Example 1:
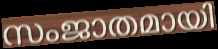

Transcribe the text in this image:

സംജാതമായി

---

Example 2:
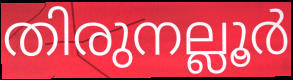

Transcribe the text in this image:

തിരുനല്ലൂർ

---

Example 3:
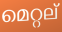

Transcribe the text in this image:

മെറ്റല്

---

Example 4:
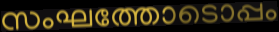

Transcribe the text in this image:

സംഘത്തോടൊപ്പം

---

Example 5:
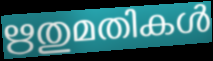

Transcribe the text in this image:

ഋതുമതികൾ